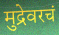
मुद्रेवरचं